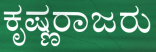
ಕೃಷ್ಣರಾಜರು